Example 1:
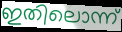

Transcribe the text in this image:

ഇതിലൊന്ന്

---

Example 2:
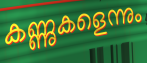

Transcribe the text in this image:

കണ്ണുകളെന്നും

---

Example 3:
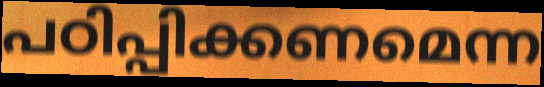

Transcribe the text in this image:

പഠിപ്പിക്കണമെന്ന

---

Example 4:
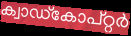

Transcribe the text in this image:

ക്വാഡ്കോപ്റ്റർ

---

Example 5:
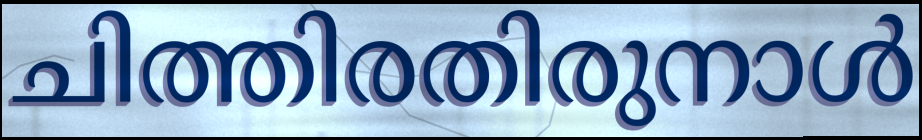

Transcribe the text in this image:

ചിത്തിരതിരുനാൾ